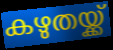
കഴുതയ്ക്ക്